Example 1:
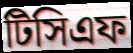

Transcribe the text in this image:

টিসিএফ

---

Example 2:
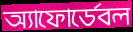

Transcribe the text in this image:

অ্যাফোর্ডেবল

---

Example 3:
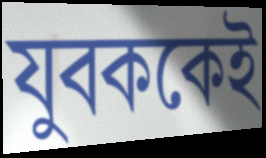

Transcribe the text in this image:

যুবককেই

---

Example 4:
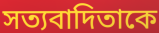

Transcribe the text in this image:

সত্যবাদিতাকে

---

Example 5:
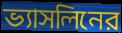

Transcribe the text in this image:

ভ্যাসলিনের